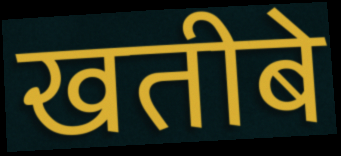
खतीबे